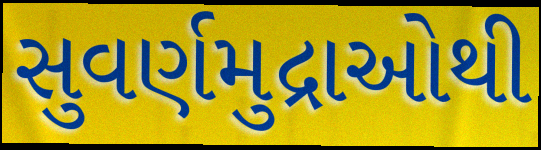
સુવર્ણમુદ્રાઓથી